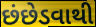
છંછેડવાથી